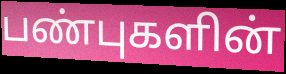
பண்புகளின்